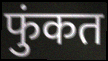
फुंकत